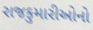
રાજકુમારીઓનો